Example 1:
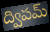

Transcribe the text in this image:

ద్విపమ్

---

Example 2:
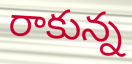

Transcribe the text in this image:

రాకున్న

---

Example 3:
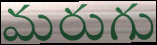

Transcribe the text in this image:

మరుగు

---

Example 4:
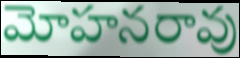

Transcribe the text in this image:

మోహనరావు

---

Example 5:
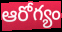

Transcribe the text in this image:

ఆరోగ్యం